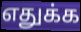
எதுக்க